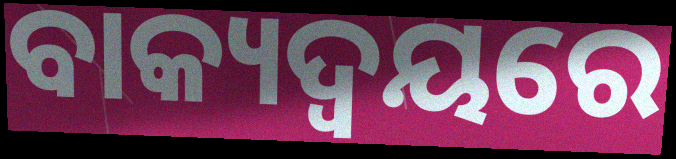
ବାକ୍ୟଦ୍ଵୟରେ